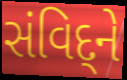
સંવિદ્‌ને